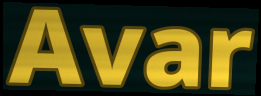
Avar